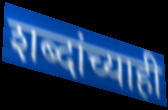
शब्दांच्याही